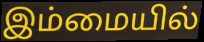
இம்மையில்